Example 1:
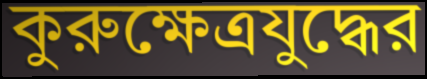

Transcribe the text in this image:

কুরুক্ষেত্রযুদ্ধের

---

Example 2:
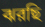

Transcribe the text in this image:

ঝরছি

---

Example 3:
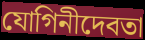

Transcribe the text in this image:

যোগিনীদেবতা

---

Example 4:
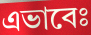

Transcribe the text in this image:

এভাবেঃ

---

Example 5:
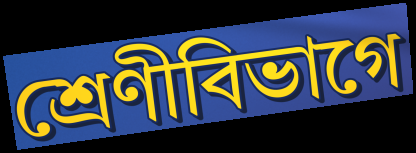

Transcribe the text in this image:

শ্রেণীবিভাগে